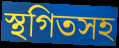
স্থগিতসহ